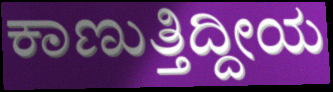
ಕಾಣುತ್ತಿದ್ದೀಯ